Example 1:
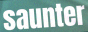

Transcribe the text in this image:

saunter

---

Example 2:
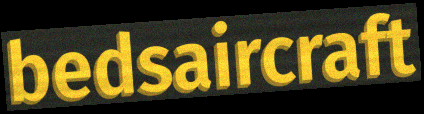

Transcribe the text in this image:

bedsaircraft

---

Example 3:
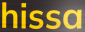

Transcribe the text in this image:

hissa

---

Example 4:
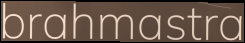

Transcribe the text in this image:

brahmastra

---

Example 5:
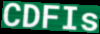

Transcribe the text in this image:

CDFIs